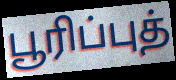
பூரிப்புத்